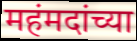
महंमदांच्या